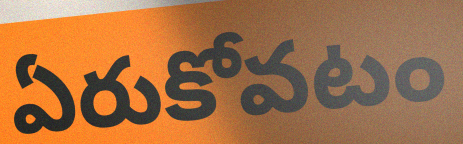
ఏరుకోవటం